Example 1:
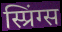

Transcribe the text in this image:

स्प्रिंग्स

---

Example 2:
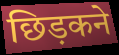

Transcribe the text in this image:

छिड़कने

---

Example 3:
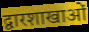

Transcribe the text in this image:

द्वारशाखाओं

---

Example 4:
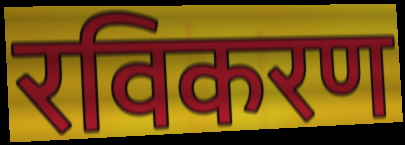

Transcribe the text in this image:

रविकरण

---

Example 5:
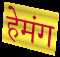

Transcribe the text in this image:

हेमंग